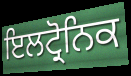
ਇਲਟ੍ਰੋਨਿਕ